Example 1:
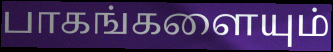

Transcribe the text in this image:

பாகங்களையும்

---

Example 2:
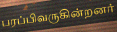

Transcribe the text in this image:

பரப்பிவருகின்றனர்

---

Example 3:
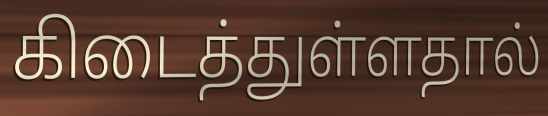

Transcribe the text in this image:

கிடைத்துள்ளதால்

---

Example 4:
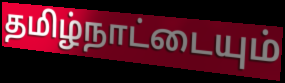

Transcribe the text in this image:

தமிழ்நாட்டையும்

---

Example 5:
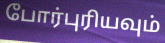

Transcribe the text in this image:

போர்புரியவும்